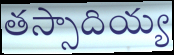
తస్సాదియ్య